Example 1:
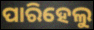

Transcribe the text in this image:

ପାରିହେଲୁ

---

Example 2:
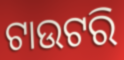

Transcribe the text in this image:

ଟାଉଟରି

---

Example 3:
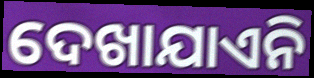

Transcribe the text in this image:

ଦେଖାଯାଏନି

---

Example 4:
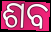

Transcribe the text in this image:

ଶବ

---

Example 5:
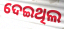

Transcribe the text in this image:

ଦେଇଥିଲ